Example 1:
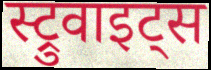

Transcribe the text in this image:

स्ट्रुवाइट्स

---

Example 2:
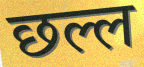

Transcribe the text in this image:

छल्ल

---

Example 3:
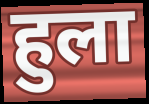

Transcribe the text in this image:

हुला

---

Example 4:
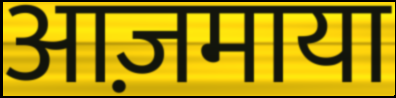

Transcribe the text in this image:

आज़माया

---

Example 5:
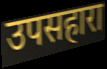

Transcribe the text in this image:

उपसहारा